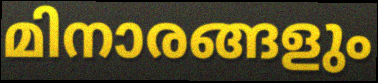
മിനാരങ്ങളും